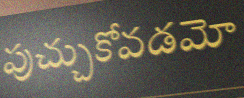
పుచ్చుకోవడమో